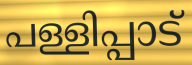
പള്ളിപ്പാട്